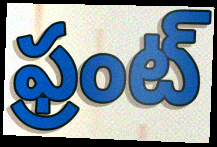
ఫ్రంట్